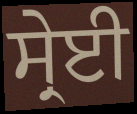
ਸ੍ਰੇਈ